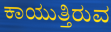
ಕಾಯುತ್ತಿರುವ